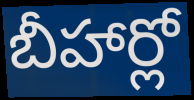
బీహార్లో